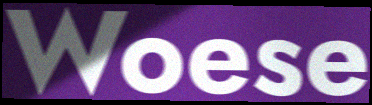
Woese